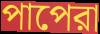
পাপেরা